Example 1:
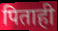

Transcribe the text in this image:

पिताही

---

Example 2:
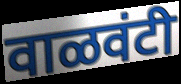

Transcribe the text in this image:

वाळवंटी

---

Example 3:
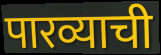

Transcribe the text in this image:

पारव्याची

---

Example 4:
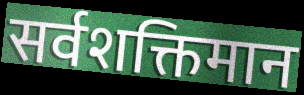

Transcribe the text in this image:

सर्वशक्तिमान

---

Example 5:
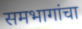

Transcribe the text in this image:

समभागांचा